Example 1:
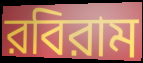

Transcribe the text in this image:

রবিরাম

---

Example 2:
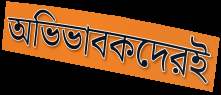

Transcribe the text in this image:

অভিভাবকদেরই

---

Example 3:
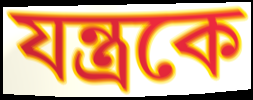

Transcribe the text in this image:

যন্ত্রকে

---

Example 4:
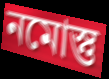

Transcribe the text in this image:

নমোস্তু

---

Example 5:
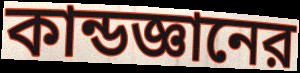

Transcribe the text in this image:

কান্ডজ্ঞানের